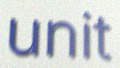
unit